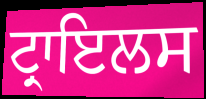
ਟ੍ਰਾਇਲਸ